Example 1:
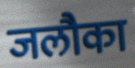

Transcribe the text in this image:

जलौका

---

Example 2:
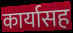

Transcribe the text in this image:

कार्यासह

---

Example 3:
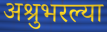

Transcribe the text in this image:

अश्रुभरल्या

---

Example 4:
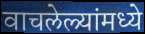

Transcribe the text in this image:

वाचलेल्यांमध्ये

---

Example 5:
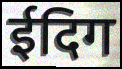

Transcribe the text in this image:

ईदिग